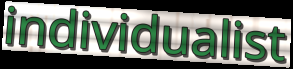
individualist